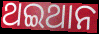
ଥଇଥାନ